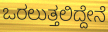
ಒರಲುತ್ತಲಿದ್ದೇನೆ